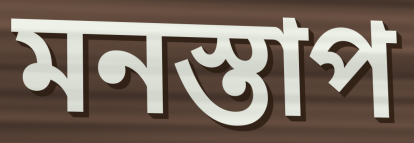
মনস্তাপ